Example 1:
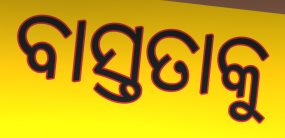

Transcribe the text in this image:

ବାସ୍ତତାକୁ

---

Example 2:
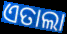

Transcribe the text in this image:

ଏତାଲା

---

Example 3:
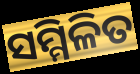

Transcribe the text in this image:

ସମ୍ମିଳିତ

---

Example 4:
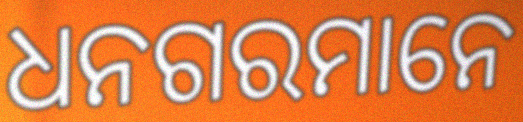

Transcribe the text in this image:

ଧନଗରମାନେ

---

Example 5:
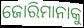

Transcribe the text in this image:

ଜୋରିମାନାକୁ